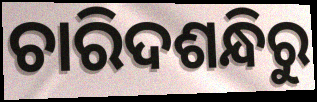
ଚାରିଦଶନ୍ଧିରୁ